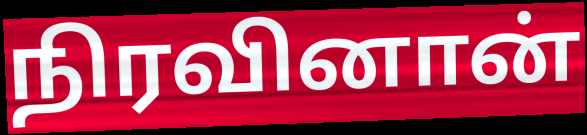
நிரவினான்